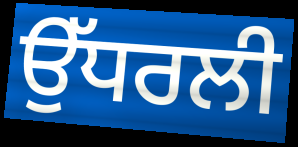
ਉੱਧਰਲੀ